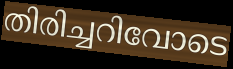
തിരിച്ചറിവോടെ